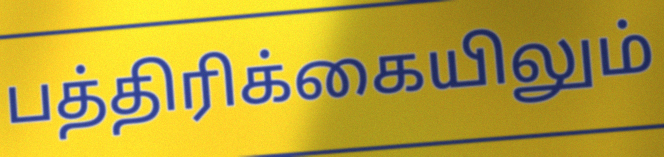
பத்திரிக்கையிலும்